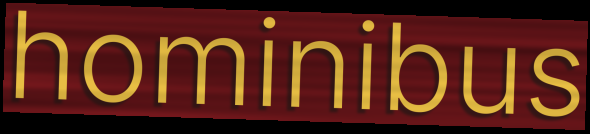
hominibus